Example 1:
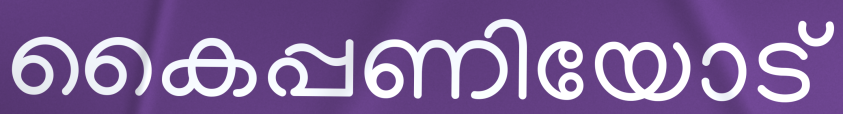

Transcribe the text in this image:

കൈപ്പണിയോട്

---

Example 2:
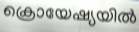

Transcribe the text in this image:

ക്രൊയേഷ്യയിൽ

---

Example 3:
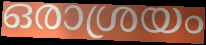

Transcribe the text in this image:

ഒരാശ്രയം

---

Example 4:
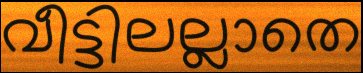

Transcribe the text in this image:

വീട്ടിലല്ലാതെ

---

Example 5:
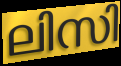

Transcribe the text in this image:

ലിസി